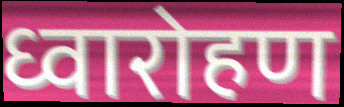
ध्वारोहण